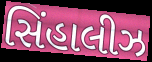
સિંહાલીઝ